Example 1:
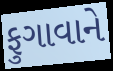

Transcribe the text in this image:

ફુગાવાને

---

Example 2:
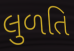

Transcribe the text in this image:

લુળતિ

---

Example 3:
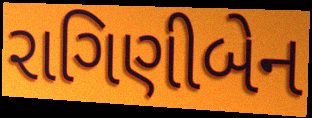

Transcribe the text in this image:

રાગિણીબેન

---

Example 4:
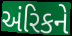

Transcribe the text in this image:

અંરિકને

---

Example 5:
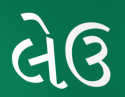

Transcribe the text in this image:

લેઉ